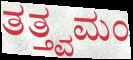
ತತ್ತ್ವಮಂ